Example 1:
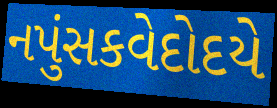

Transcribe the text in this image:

નપુંસકવેદોદયે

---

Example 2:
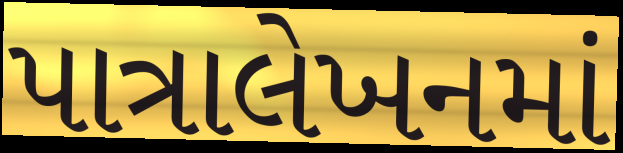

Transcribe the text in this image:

પાત્રાલેખનમાં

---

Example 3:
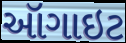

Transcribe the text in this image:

ઑગાઇટ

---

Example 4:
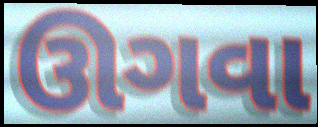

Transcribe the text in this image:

ઊગવા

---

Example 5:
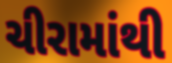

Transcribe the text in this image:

ચીરામાંથી